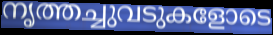
നൃത്തച്ചുവടുകളോടെ